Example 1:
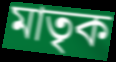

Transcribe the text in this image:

মাতৃক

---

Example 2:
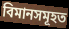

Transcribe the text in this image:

বিমানসমূহত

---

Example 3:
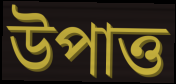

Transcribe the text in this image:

উপাত্ত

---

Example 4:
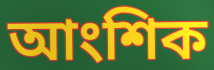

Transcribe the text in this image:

আংশিক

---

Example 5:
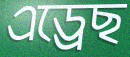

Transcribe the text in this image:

এড্ৰেছ